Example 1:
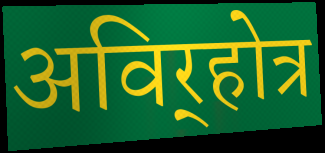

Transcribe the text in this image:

अविर्होत्र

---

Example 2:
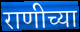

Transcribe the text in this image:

राणीच्या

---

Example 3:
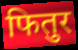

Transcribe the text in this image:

फितुर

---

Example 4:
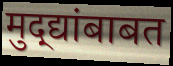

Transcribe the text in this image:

मुद्द्यांबाबत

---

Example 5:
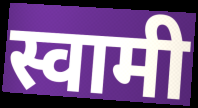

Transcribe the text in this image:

स्वामी